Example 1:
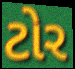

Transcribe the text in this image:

ટોર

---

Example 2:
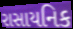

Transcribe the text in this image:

રાસાયનિક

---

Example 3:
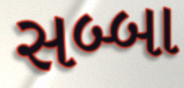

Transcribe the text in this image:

સબ્બા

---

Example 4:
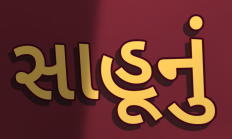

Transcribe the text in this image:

સાહૂનું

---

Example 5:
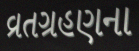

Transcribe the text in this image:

વ્રતગ્રહણના